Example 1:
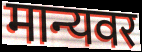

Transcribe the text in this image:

मान्‍यवर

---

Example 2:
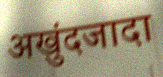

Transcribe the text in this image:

अखुंदजादा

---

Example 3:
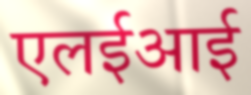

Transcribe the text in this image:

एलईआई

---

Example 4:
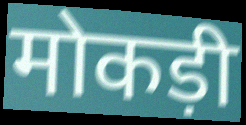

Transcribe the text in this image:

मोकड़ी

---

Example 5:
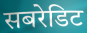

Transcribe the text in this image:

सबरेडिट